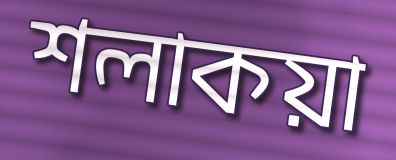
শলাকয়া